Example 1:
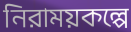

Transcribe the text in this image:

নিরাময়কল্পে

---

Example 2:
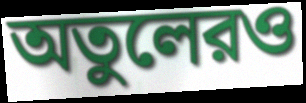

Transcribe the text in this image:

অতুলেরও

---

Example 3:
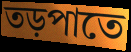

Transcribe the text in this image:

তড়পাতে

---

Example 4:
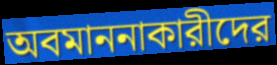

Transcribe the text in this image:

অবমাননাকারীদের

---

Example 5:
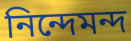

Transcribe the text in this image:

নিন্দেমন্দ